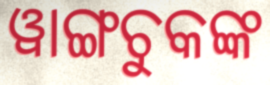
ୱାଙ୍ଗଚୁକଙ୍କ